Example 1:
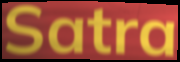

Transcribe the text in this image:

Satra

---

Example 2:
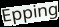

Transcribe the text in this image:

Epping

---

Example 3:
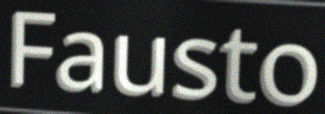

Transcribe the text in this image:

Fausto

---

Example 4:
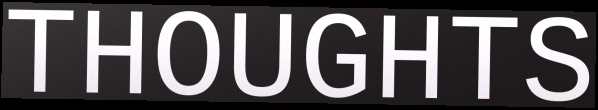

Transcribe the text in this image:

THOUGHTS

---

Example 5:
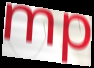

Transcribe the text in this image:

mp